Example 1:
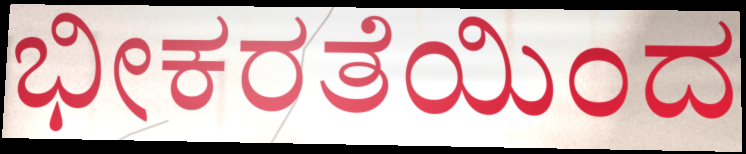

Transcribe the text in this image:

ಭೀಕರತೆಯಿಂದ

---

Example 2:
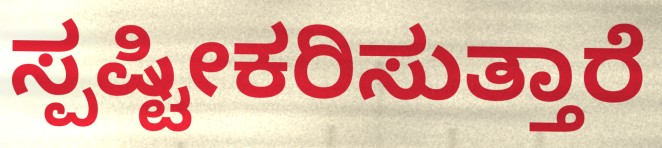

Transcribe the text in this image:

ಸ್ಪಷ್ಟೀಕರಿಸುತ್ತಾರೆ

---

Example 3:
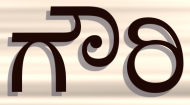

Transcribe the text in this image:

ಗೌರಿ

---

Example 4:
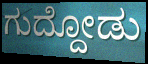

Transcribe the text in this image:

ಗುದ್ದೋಡು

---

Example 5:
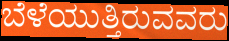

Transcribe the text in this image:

ಬೆಳೆಯುತ್ತಿರುವವರು